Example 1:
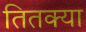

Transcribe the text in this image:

तितक्या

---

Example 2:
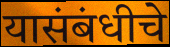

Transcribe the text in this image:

यासंबंधीचे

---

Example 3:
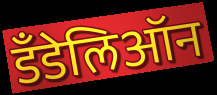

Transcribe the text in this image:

डँडेलिऑन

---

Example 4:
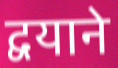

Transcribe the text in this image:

द्वयाने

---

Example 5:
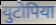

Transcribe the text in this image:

युटोपिया